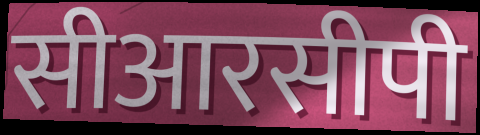
सीआरसीपी